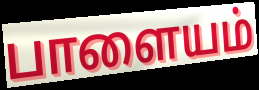
பாளையம்